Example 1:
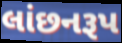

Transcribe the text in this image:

લાંછનરૂપ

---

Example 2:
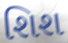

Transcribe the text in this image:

શિશ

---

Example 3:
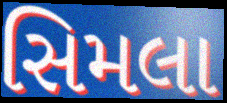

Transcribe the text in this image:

સિમલા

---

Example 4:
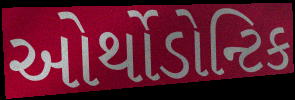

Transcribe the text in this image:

ઓર્થોડોન્ટિક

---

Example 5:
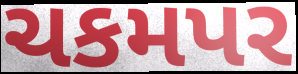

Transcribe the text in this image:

ચકમપર